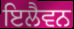
ਇਲੈਵਨ